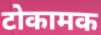
टोकामक